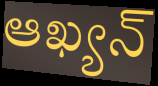
ఆఖ్యన్